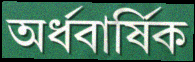
অর্ধবার্ষিক